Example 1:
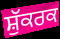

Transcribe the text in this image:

ਸ਼ੁੱਕਰਕ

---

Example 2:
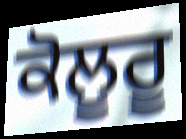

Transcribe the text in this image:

ਕੋਲੂਰੂ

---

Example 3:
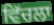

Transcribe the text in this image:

ਵਿੱਚਲਾ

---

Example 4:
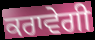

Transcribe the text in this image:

ਕਰਾਵੇਗੀ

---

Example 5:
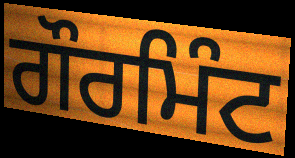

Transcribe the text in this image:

ਗੌਰਮਿੰਟ